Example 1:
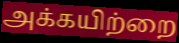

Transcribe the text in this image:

அக்கயிற்றை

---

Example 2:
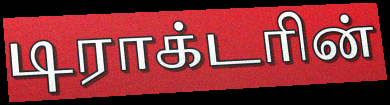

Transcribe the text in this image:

டிராக்டரின்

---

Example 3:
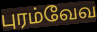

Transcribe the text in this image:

புரம்வேவ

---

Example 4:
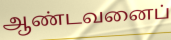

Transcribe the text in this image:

ஆண்டவனைப்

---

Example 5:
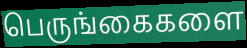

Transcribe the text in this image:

பெருங்கைகளை